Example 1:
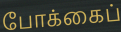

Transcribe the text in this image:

போக்கைப்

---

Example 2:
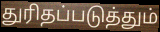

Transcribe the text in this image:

துரிதப்படுத்தும்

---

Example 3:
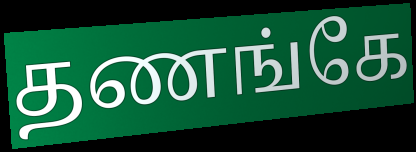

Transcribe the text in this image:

தணங்கே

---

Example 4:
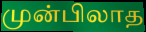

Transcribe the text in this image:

முன்பிலாத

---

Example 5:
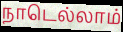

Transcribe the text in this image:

நாடெல்லாம்